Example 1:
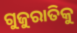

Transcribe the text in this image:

ଗୁଜୁରାତିକୁ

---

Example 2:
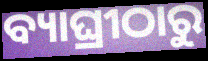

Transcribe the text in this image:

ବ୍ୟାଘ୍ରୀଠାରୁ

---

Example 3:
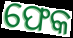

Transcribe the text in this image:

ଫେକ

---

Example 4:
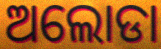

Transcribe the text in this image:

ଅଲୋଡା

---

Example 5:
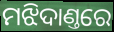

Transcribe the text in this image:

ମଝିଦାଣ୍ତରେ